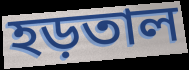
হড়তাল